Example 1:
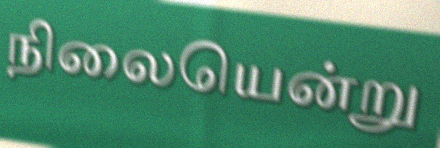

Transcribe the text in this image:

நிலையென்று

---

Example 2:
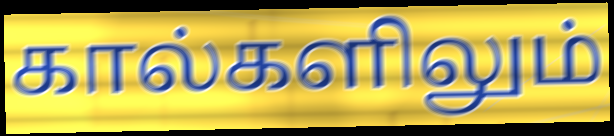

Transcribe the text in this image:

கால்களிலும்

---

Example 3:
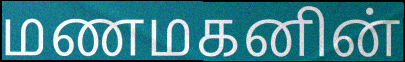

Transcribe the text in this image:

மணமகனின்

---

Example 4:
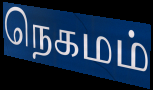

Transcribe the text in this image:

நெகமம்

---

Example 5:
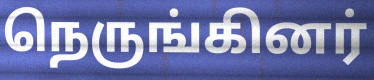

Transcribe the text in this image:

நெருங்கினர்